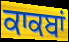
ਕਾਕਬਾਂ